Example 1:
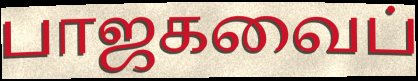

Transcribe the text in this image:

பாஜகவைப்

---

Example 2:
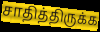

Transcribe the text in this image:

சாதித்திருக்க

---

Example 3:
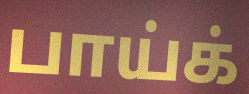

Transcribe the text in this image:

பாய்க்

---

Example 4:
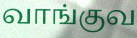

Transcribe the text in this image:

வாங்குவ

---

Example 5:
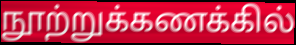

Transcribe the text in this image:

நூற்றுக்கணக்கில்